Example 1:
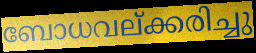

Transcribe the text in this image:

ബോധവല്ക്കരിച്ചു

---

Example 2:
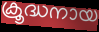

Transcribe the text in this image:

ക്രൂദ്ധനായ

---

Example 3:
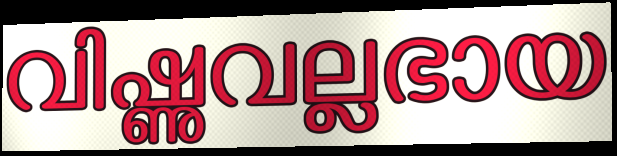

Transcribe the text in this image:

വിഷ്ണുവല്ലഭായ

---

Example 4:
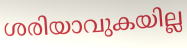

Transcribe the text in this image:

ശരിയാവുകയില്ല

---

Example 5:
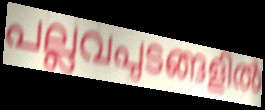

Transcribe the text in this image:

പല്ലവപുടങ്ങളിൽ